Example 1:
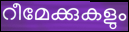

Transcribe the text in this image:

റീമേക്കുകളും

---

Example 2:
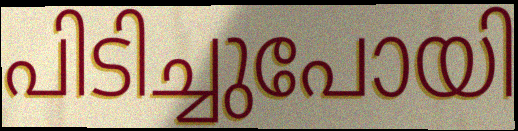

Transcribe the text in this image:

പിടിച്ചുപോയി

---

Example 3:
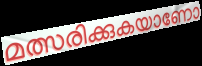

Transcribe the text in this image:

മത്സരിക്കുകയാണോ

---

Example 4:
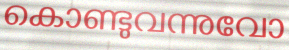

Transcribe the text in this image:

കൊണ്ടുവന്നുവോ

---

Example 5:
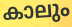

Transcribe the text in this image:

കാലും